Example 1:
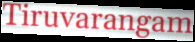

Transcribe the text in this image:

Tiruvarangam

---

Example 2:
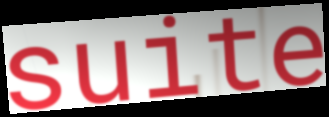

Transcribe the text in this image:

suite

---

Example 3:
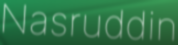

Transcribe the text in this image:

Nasruddin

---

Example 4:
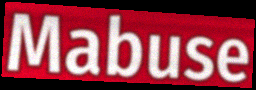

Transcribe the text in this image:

Mabuse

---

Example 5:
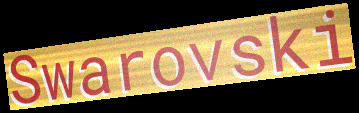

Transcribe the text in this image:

Swarovski